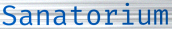
Sanatorium